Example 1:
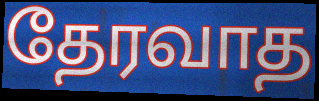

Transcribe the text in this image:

தேரவாத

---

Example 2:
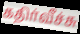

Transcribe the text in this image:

கதிர்வீச்சு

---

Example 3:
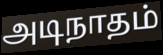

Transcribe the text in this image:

அடிநாதம்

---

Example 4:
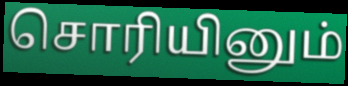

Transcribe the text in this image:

சொரியினும்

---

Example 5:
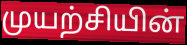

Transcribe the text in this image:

முயற்சியின்